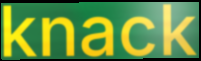
knack